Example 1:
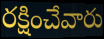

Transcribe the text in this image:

రక్షించేవారు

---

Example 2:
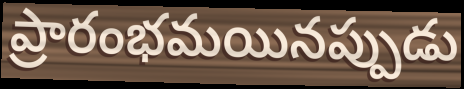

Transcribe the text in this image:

ప్రారంభమయినప్పుడు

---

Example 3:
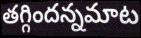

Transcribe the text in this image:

తగ్గిందన్నమాట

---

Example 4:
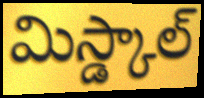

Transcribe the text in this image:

మిస్డ్కాల్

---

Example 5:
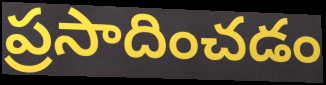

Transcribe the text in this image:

ప్రసాదించడం